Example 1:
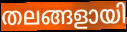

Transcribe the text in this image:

തലങ്ങളായി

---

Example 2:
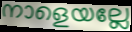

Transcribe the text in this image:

നാളെയല്ലേ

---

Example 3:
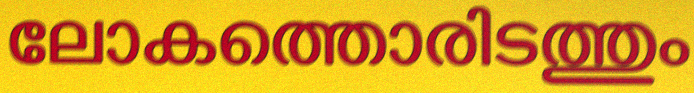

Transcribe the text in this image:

ലോകത്തൊരിടത്തും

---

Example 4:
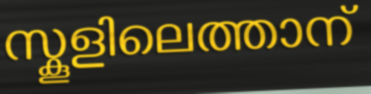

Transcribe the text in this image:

സ്കൂളിലെത്താന്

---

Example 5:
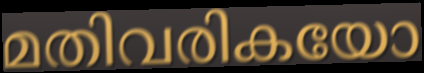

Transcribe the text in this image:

മതിവരികയോ